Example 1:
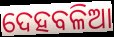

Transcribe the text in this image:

ଦେହବଳିଆ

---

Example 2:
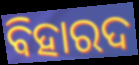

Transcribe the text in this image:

ବିହାରଦ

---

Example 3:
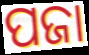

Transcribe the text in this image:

ପଜା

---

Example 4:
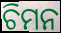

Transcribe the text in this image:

ଚିମନ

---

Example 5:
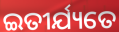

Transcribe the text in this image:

ଇତୀର୍ଯ୍ୟତେ